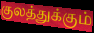
குலத்துக்கும்